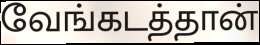
வேங்கடத்தான்